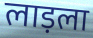
लाड़ला